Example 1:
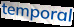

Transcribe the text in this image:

temporal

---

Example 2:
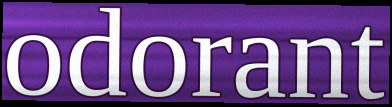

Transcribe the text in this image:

odorant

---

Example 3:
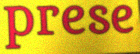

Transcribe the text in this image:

prese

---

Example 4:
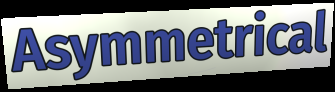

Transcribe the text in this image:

Asymmetrical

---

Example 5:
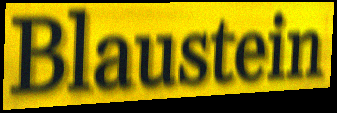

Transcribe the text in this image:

Blaustein